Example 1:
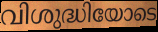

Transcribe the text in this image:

വിശുദ്ധിയോടെ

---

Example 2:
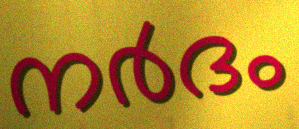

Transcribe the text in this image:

നർദം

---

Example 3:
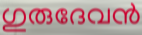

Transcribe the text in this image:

ഗുരുദേവൻ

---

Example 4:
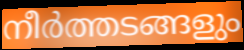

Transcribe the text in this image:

നീർത്തടങ്ങളും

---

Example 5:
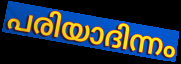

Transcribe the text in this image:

പരിയാദിന്നം